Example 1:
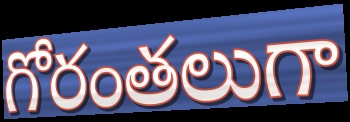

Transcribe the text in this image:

గోరంతలుగా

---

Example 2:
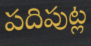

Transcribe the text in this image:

పదిపుట్ల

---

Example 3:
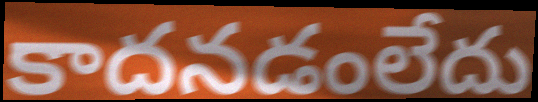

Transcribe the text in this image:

కాదనడంలేదు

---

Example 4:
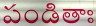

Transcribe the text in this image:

పండితాః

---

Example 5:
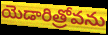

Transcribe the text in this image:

యెడారిత్రోవను